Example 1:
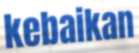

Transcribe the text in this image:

kebaikan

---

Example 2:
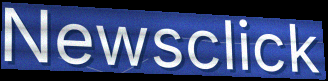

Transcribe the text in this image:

Newsclick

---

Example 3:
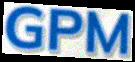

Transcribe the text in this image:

GPM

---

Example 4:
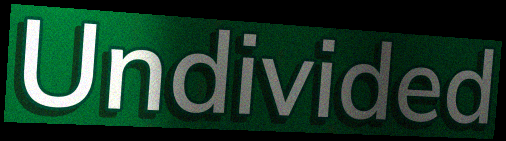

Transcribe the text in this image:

Undivided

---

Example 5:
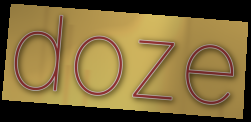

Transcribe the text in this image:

doze